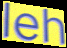
leh